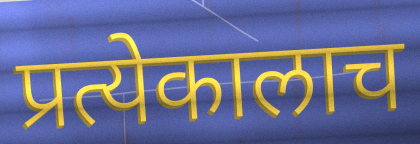
प्रत्येकालाच